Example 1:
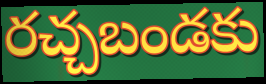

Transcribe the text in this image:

రచ్చబండకు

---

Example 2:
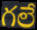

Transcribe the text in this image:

గలే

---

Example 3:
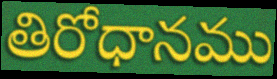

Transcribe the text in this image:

తిరోధానము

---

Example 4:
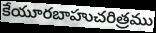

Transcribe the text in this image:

కేయూరబాహుచరిత్రము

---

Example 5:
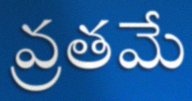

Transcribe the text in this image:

వ్రతమే